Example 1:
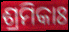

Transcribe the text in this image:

ଶ୍ରମିକାଃ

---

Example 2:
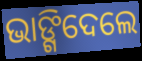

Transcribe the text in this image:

ଭାଙ୍ଗିଦେଲେ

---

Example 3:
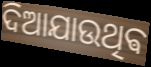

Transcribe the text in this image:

ଦିଆଯାଉଥିଵ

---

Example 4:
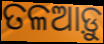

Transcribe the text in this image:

ତଳଆଡ଼ୁ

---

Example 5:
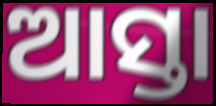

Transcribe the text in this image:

ଆସ୍ତା